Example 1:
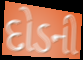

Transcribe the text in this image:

દોડની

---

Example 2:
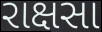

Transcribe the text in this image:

રાક્ષસા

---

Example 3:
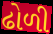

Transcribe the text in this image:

ઢોળી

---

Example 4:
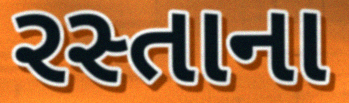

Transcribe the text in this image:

રસ્તાના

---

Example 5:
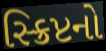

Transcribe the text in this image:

સ્ક્રિપ્ટનો